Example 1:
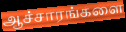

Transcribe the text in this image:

ஆச்சாரங்களை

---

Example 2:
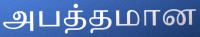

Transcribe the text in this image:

அபத்தமான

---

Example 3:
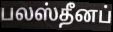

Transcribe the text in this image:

பலஸ்தீனப்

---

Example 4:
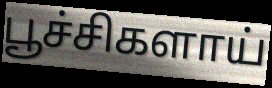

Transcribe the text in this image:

பூச்சிகளாய்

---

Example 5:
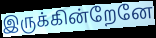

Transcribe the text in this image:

இருக்கின்றேனே